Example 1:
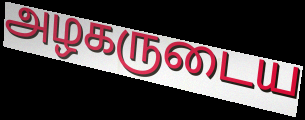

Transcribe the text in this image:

அழகருடைய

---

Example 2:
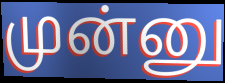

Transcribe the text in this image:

முன்னு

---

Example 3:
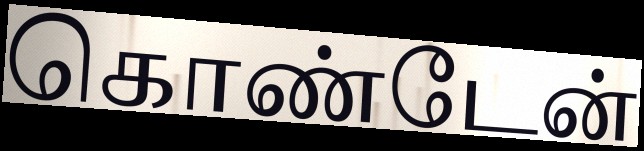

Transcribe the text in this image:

கொண்டேன்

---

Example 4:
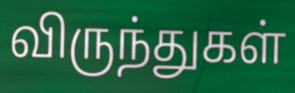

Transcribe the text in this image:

விருந்துகள்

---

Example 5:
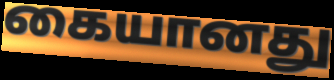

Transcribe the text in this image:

கையானது